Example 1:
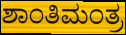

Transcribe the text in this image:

ಶಾಂತಿಮಂತ್ರ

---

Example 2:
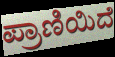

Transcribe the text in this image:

ಪ್ರಾಣಿಯಿದೆ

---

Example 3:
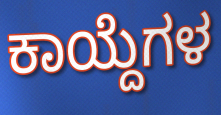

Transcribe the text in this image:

ಕಾಯ್ದೆಗಳ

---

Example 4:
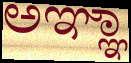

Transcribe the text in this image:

ಅಞ್ಞಾ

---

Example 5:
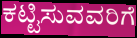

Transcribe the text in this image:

ಕಟ್ಟಿಸುವವರಿಗೆ